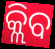
କ୍ଲିବ